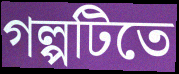
গল্পটিতে